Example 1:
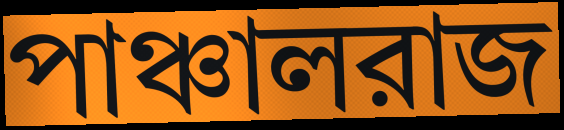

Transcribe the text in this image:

পাঞ্চালরাজ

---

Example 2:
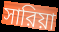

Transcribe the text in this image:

সারিয়া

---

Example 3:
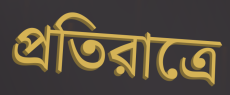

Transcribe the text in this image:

প্রতিরাত্রে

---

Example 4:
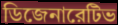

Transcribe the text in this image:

ডিজেনারেটিভ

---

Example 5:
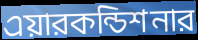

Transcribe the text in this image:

এয়ারকন্ডিশনার